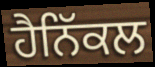
ਹੈਨਿੱਕਲ